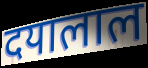
दयालाल